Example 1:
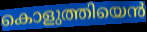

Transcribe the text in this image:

കൊളുത്തിയെൻ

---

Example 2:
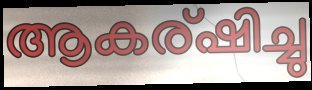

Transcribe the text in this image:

ആകര്ഷിച്ചു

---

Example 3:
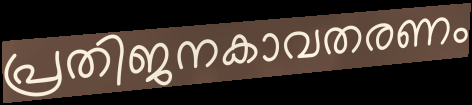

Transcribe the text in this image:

പ്രതിജനകാവതരണം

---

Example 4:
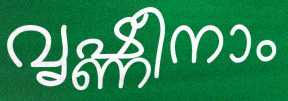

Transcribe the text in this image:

വൃഷ്ണീനാം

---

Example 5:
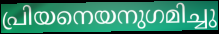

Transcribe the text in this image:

പ്രിയനെയനുഗമിച്ചു